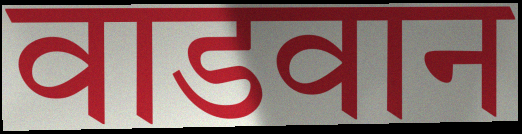
वाडवान